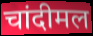
चांदीमल